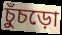
চুঁচড়ো